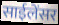
साईलेंसर